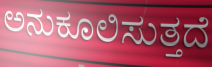
ಅನುಕೂಲಿಸುತ್ತದೆ